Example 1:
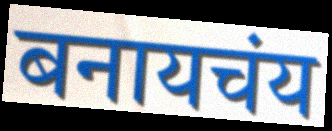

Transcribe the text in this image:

बनायचंय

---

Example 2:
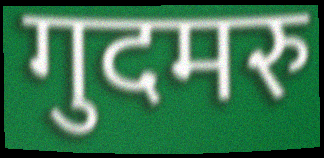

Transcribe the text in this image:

गुदमरु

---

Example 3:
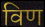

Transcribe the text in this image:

विण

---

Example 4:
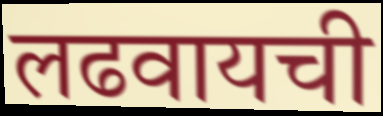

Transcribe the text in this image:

लढवायची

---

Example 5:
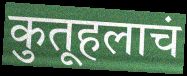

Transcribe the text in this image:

कुतूहलाचं